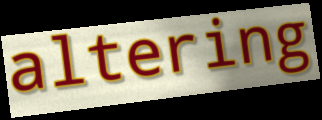
altering